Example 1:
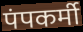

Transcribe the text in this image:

पंपकर्मी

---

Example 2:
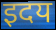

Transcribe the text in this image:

इदय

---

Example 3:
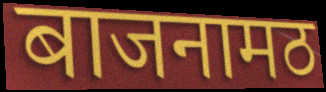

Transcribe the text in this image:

बाजनामठ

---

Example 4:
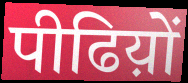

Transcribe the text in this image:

पीढिय़ों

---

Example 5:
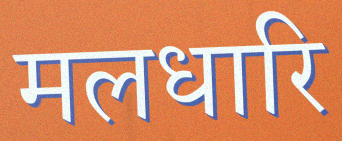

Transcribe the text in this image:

मलधारि